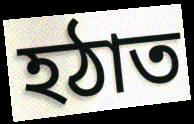
হঠাত